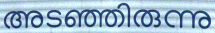
അടഞ്ഞിരുന്നു